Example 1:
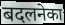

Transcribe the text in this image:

बदलनेका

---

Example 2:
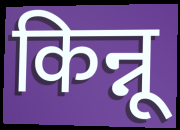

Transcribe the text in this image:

किन्नू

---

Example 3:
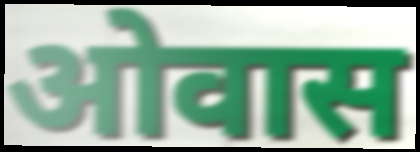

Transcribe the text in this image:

ओवास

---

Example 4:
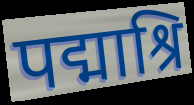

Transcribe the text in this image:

पद्माश्रि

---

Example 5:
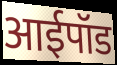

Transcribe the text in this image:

आईपॉड